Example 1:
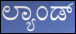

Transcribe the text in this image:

ಲ್ಯಾಂಡ್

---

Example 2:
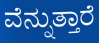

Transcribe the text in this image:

ವೆನ್ನುತ್ತಾರೆ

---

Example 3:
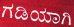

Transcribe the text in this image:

ಗಡಿಯಾಗಿ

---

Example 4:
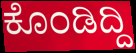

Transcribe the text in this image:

ಕೊಂಡಿದ್ದಿ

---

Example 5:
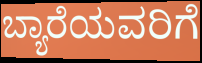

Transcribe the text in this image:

ಬ್ಯಾರೆಯವರಿಗೆ